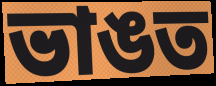
ভাঙত